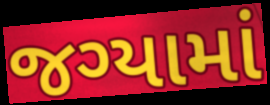
જગ્યામાં